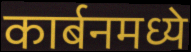
कार्बनमध्ये